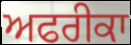
ਅਫਰੀਕਾ